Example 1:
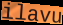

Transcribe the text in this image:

ilavu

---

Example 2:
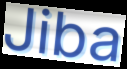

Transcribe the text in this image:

Jiba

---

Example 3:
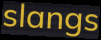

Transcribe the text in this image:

slangs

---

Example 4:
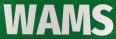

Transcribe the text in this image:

WAMS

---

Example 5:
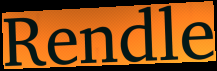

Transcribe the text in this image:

Rendle